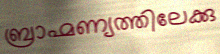
ബ്രാഹ്മണ്യത്തിലേക്കു